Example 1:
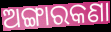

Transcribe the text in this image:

ଅଙ୍ଗାରକଣା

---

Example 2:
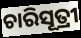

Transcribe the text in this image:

ଚାରିସୂତ୍ରୀ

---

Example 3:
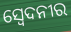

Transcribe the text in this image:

ସ୍ୱେଦନୀର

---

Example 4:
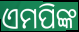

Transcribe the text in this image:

ଏମପିଙ୍କ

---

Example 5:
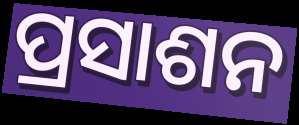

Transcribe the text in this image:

ପ୍ରସାଶନ